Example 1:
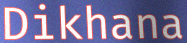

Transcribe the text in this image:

Dikhana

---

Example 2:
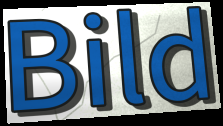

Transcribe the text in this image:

Bild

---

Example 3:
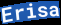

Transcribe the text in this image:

Erisa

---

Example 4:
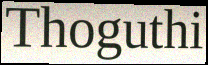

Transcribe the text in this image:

Thoguthi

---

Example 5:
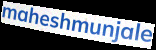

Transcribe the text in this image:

maheshmunjale